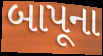
બાપૂના